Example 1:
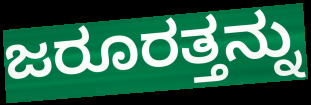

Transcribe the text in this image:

ಜರೂರತ್ತನ್ನು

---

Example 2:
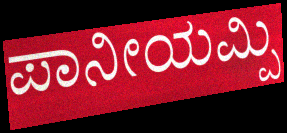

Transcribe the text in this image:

ಪಾನೀಯಮ್ಪಿ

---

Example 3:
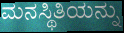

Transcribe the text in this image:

ಮನಸ್ಥಿತಿಯನ್ನು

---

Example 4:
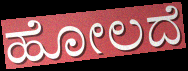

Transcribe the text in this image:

ಹೋಲದೆ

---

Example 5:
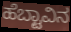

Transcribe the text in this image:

ಹೆಬ್ಟಾವಿನ